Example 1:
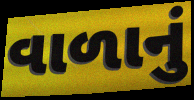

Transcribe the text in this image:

વાળાનું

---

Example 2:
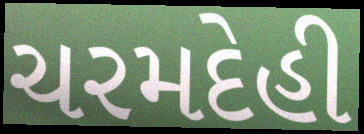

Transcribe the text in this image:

ચરમદેહી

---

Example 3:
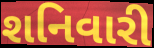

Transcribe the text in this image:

શનિવારી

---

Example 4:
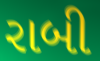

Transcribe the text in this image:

રાબી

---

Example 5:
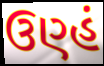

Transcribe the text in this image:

ઉણ્હં